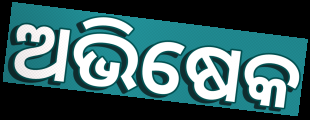
ଅଭିଷେକ